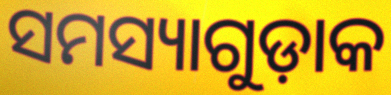
ସମସ୍ୟାଗୁଡ଼ାକ